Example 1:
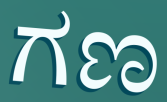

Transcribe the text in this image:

ಗಣ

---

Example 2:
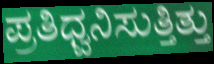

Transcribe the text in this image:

ಪ್ರತಿಧ್ವನಿಸುತ್ತಿತ್ತು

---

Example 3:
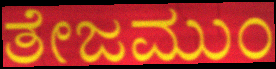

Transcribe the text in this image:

ತೇಜಮುಂ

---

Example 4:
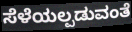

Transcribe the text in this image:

ಸೆಳೆಯಲ್ಪಡುವಂತೆ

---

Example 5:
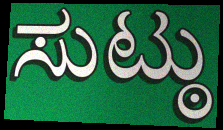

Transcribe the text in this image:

ಸುಟ್ಠು